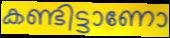
കണ്ടിട്ടാണോ